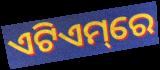
ଏଟିଏମ୍‌ରେ